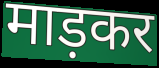
माड़कर